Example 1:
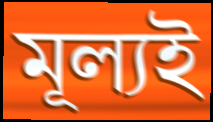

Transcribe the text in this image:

মূল্যই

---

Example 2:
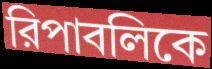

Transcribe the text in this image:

রিপাবলিকে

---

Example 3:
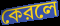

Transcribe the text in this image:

কেরলে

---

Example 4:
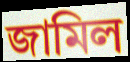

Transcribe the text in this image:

জামিল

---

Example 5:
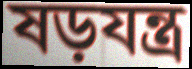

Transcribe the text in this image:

ষড়যন্ত্র